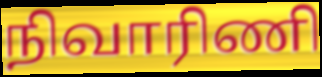
நிவாரிணி